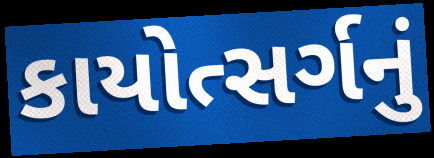
કાયોત્સર્ગનું